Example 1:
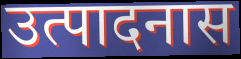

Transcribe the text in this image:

उत्पादनास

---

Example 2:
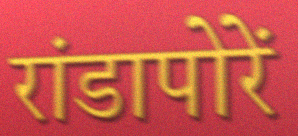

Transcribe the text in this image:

रांडापोरें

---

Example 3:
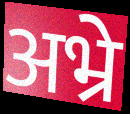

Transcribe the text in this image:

अभ्रे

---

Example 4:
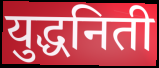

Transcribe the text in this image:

युद्धनिती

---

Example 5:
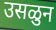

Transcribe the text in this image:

उसळुन